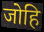
जोहि